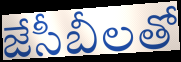
జేసీబీలతో